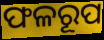
ଫଳରୂପ